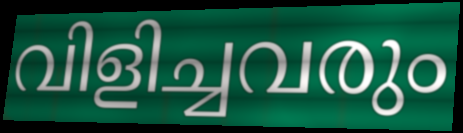
വിളിച്ചവരും